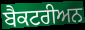
ਬੈਕਟਰੀਅਨ